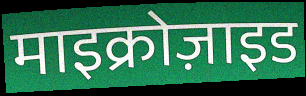
माइक्रोज़ाइड